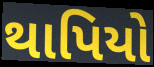
થાપિયો